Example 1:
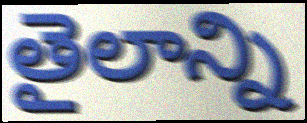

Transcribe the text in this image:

తైలాన్ని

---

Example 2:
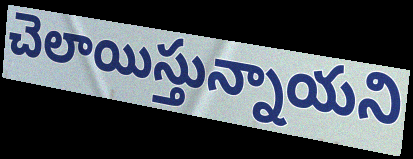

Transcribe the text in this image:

చెలాయిస్తున్నాయని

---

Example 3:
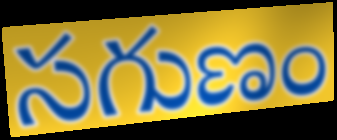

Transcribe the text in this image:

సగుణం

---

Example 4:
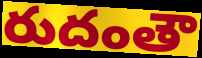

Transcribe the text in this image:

రుదంతౌ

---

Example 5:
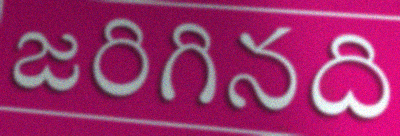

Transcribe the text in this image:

జరిగినది